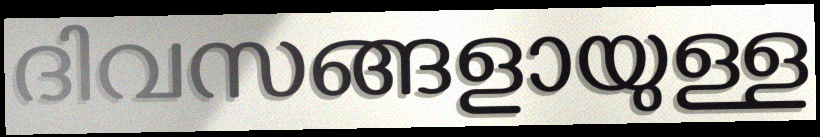
ദിവസങ്ങളായുള്ള